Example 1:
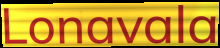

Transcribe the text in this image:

Lonavala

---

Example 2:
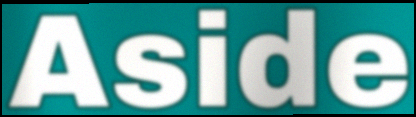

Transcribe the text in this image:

Aside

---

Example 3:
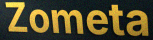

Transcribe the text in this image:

Zometa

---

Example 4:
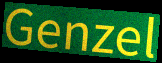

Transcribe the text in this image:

Genzel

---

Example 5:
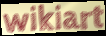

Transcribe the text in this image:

wikiart